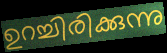
ഉറച്ചിരിക്കുന്നു